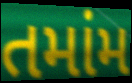
તમાંમ